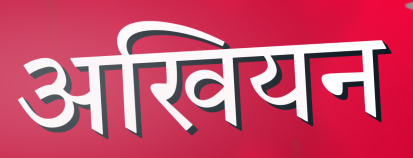
अखियन